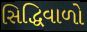
સિદ્ધિવાળો